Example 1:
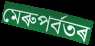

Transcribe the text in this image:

মেৰুপৰ্বতৰ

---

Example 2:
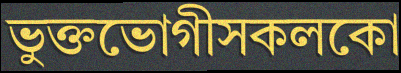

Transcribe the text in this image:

ভুক্তভোগীসকলকো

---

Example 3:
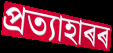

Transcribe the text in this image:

প্ৰত্যাহাৰৰ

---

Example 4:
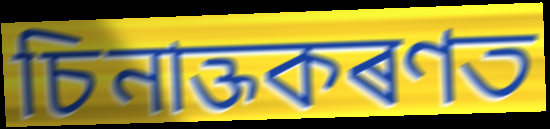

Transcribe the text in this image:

চিনাক্তকৰণত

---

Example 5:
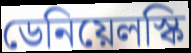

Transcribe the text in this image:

ডেনিয়েলস্কি